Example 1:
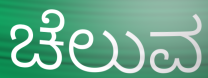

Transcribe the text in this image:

ಚೆಲುವ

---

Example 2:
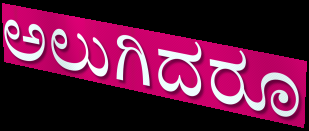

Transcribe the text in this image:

ಅಲುಗಿದರೂ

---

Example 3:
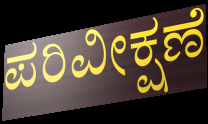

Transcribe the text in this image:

ಪರಿವೀಕ್ಷಣೆ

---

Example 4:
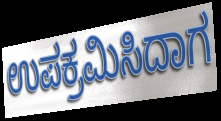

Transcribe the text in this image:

ಉಪಕ್ರಮಿಸಿದಾಗ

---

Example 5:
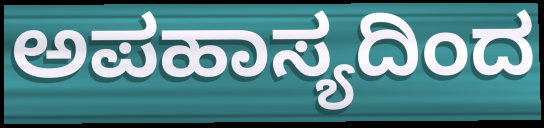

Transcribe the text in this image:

ಅಪಹಾಸ್ಯದಿಂದ